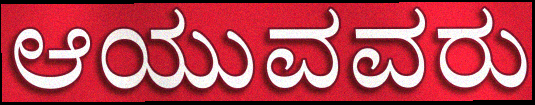
ಆಯುವವರು